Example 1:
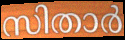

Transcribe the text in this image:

സിതാർ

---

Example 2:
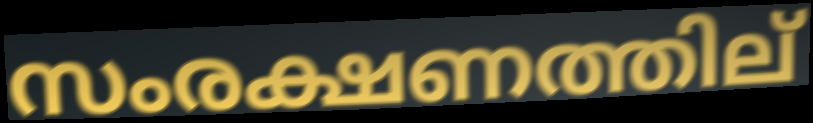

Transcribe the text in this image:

സംരക്ഷണത്തില്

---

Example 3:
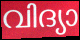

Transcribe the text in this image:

വിദ്യാ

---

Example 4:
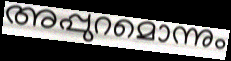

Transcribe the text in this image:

അപ്പുറമൊന്നും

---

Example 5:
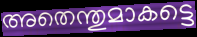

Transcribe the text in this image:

അതെന്തുമാകട്ടെ